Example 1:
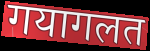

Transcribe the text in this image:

गयागलत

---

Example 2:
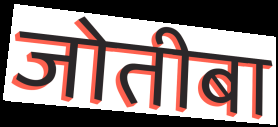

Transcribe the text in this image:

जोतीबा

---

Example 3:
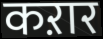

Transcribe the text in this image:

कऱार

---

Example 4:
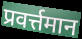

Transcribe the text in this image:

प्रवर्त्तमान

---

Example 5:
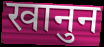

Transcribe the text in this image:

खानुन